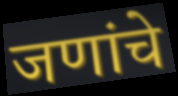
जणांचे